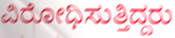
ವಿರೋಧಿಸುತ್ತಿದ್ದರು